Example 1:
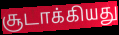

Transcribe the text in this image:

சூடாக்கியது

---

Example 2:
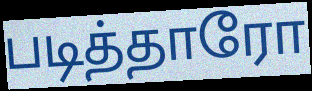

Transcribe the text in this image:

படித்தாரோ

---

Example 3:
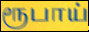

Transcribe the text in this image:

ரூபாய்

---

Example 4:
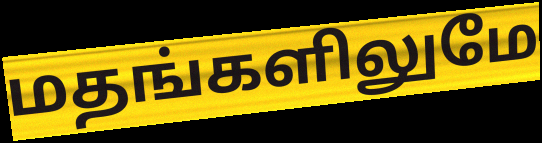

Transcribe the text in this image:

மதங்களிலுமே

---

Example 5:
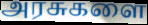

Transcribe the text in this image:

அரசுகளை